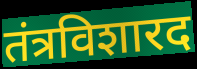
तंत्रविशारद